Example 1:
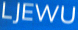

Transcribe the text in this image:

LJEWU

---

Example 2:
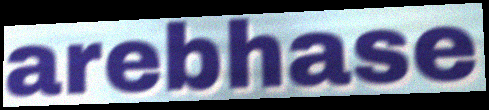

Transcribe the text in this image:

arebhase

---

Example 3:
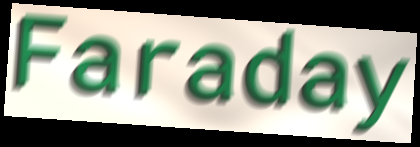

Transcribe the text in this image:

Faraday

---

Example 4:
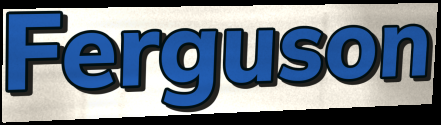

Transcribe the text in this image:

Ferguson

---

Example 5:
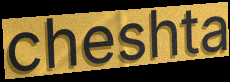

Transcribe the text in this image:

cheshta